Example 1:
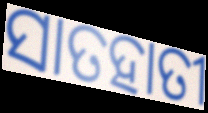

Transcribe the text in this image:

ସାତହାତୀ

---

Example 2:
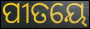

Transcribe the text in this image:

ପୀତୟେ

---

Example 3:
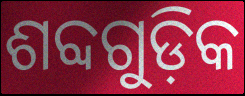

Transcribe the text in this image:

ଶବ୍ଦଗୁଡ଼ିକ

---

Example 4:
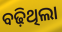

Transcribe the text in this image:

ବଢ଼ିଥିଲା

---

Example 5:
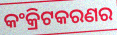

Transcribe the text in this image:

କଂକ୍ରିଟକରଣର